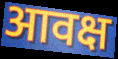
आवक्ष